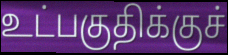
உட்பகுதிக்குச்